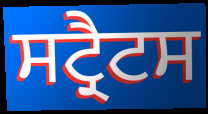
ਸਟ੍ਰੈਟਸ